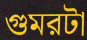
গুমরটা